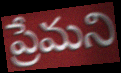
ప్రేమని